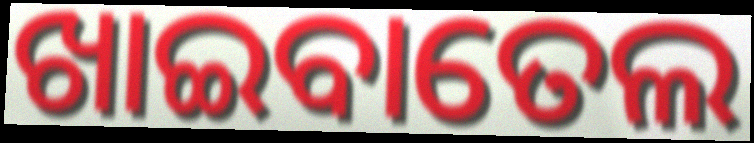
ଖାଇବାତେଲ